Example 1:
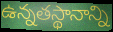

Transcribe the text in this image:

ఉన్నతస్థానాన్ని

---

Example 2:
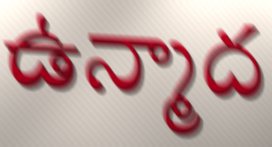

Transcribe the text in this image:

ఉన్మాద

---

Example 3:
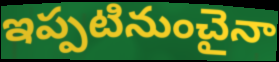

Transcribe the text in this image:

ఇప్పటినుంచైనా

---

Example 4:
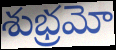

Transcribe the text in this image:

శుభ్రమో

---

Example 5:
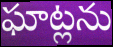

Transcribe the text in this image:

ఘాట్లను